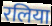
रलिया